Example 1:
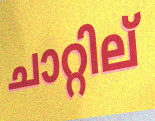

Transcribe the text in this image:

ചാറ്റില്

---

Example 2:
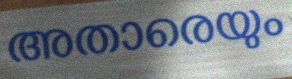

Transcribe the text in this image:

അതാരെയും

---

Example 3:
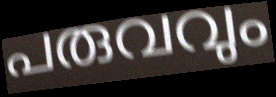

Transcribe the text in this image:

പരുവവും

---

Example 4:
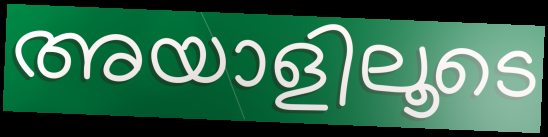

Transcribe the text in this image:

അയാളിലൂടെ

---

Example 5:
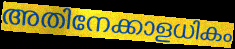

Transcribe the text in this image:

അതിനേക്കാളധികം